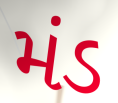
મંડ